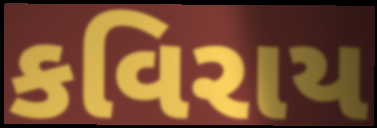
કવિરાય